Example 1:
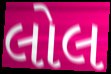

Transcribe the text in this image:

લોલ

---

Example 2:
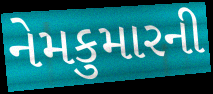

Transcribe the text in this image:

નેમકુમારની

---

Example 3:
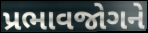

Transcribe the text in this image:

પ્રભાવજોગને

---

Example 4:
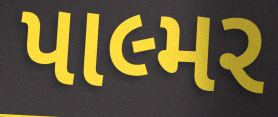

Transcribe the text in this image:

પાલ્મર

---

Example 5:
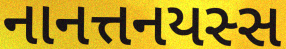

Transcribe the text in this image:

નાનત્તનયસ્સ